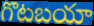
గొటబయా